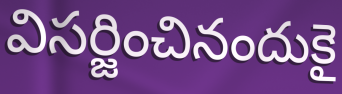
విసర్జించినందుకై